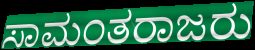
ಸಾಮಂತರಾಜರು